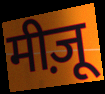
मीज़ू